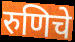
रुणिचे